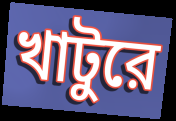
খাটুরে